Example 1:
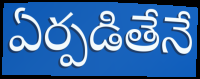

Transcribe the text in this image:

ఏర్పడితేనే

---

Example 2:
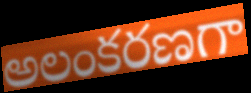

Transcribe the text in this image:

అలంకరణగా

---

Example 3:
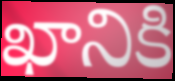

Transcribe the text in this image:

ఖానికి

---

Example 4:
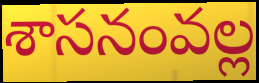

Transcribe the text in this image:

శాసనంవల్ల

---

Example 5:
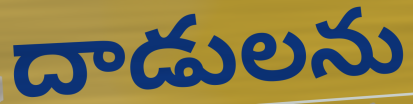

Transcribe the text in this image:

దాడులను